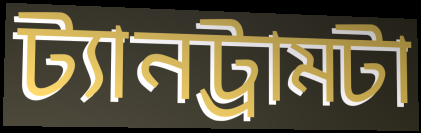
ট্যানট্রামটা